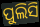
ପୁଲିସି